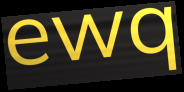
ewq